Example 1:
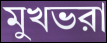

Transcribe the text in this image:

মুখভরা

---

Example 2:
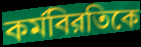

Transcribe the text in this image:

কর্মবিরতিকে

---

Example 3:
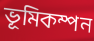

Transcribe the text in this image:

ভূমিকম্পন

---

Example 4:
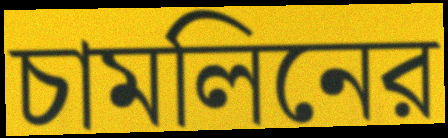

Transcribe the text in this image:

চামলিনের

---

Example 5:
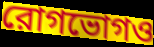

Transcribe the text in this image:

রোগভোগও